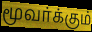
மூவர்க்கும்